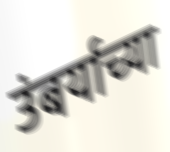
उंबर्याच्या